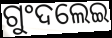
ଗୁଂଦଲେଇ